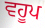
ਵਹੂਪ